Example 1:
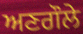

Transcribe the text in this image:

ਅਣਗੌਲੇ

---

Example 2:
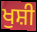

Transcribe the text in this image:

ਖੁਸ਼ੀ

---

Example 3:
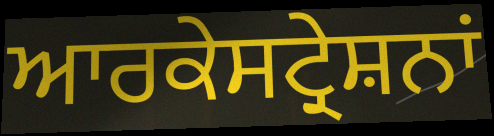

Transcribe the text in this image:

ਆਰਕੇਸਟ੍ਰੇਸ਼ਨਾਂ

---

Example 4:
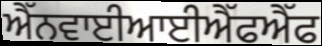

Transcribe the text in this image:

ਐੱਨਵਾਈਆਈਐੱਫਐੱਫ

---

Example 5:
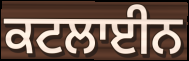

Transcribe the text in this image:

ਕਟਲਾਈਨ